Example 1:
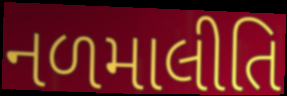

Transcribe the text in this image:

નળમાલીતિ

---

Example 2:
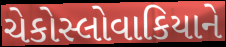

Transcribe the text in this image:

ચેકોસ્લોવાકિયાને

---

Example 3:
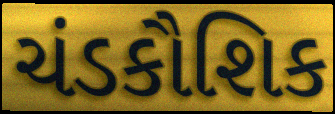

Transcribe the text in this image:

ચંડકૌશિક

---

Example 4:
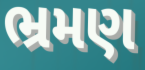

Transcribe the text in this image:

ભ્રમણ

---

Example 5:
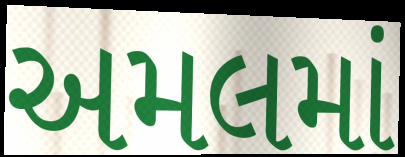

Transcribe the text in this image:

અમલમાં